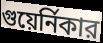
গুয়ের্নিকার